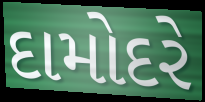
દામોદરે